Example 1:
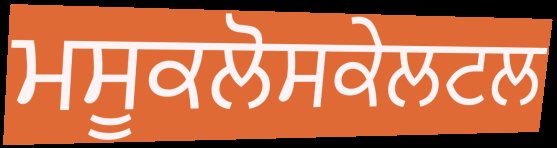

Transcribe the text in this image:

ਮਸੂਕਲੋਸਕੇਲਟਲ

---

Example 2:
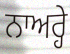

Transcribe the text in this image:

ਨਾਅਰ੍ਹੇ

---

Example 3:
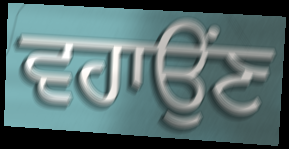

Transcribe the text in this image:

ਵਹਾਉਂਣ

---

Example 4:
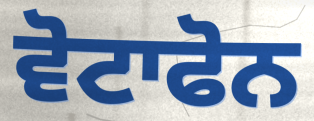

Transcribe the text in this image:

ਵੋਟਾਫੋਨ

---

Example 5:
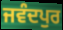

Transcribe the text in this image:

ਜਵੰਦਪੁਰ